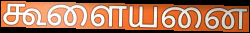
கூளையனை